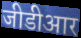
जीडीआर